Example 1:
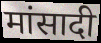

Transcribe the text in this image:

मांसादी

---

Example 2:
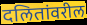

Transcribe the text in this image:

दलितांवरील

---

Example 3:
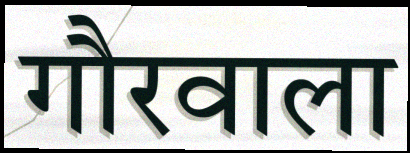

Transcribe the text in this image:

गौरवाला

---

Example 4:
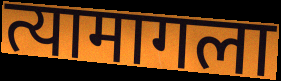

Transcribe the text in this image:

त्यामागला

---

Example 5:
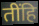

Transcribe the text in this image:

तींहि